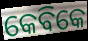
କେବିକେ